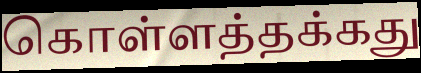
கொள்ளத்தக்கது